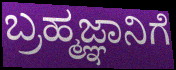
ಬ್ರಹ್ಮಜ್ಞಾನಿಗೆ